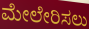
ಮೇಲೇರಿಸಲು